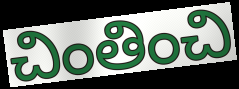
చింతించి